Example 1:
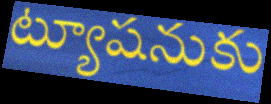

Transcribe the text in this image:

ట్యూషనుకు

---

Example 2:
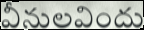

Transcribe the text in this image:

వీనులవిందు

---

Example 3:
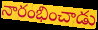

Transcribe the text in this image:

నారంభించాడు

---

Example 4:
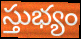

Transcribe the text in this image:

స్తుభ్యం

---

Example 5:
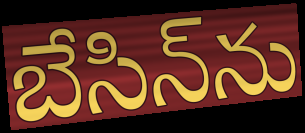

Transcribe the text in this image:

బేసిన్‌ను